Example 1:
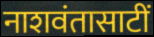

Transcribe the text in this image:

नाशवंतासाटीं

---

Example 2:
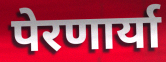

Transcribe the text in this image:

पेरणार्या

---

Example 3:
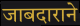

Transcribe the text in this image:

जाबदाराने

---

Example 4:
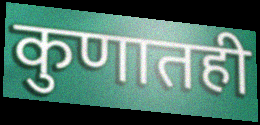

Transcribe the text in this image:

कुणातही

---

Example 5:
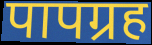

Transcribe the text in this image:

पापग्रह